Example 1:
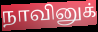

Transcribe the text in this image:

நாவினுக்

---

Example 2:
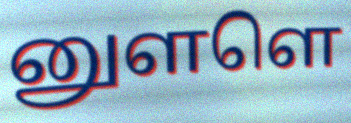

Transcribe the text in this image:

னுளளெ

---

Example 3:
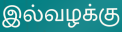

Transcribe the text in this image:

இல்வழக்கு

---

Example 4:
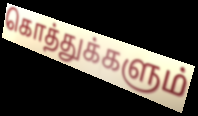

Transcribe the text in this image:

கொத்துக்களும்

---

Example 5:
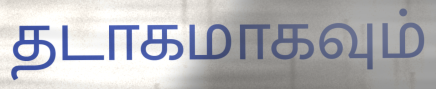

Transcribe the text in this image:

தடாகமாகவும்